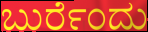
ಬುರ್ರೆಂದು